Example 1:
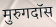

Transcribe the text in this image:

मुरुगदॉस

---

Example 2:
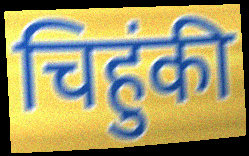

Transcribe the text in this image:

चिहुंकी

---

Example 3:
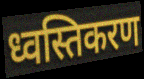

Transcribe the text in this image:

ध्वस्तिकरण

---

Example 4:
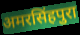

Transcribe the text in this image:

अमरसिंहपुरा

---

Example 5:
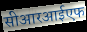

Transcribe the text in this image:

सीआरआईएफ